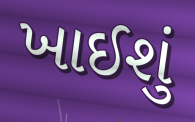
ખાઈશું